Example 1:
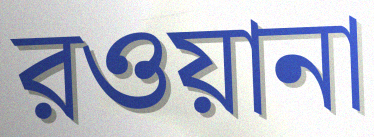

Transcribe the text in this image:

রওয়ানা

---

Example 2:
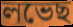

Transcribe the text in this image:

লভেছ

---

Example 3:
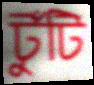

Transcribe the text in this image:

টুঁটি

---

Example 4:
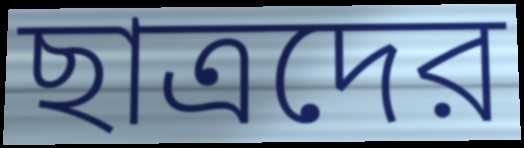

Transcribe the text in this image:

ছাত্রদের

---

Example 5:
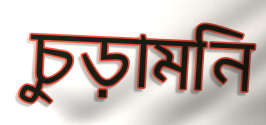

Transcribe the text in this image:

চুড়ামনি